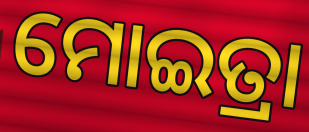
ମୋଇତ୍ରା